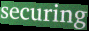
securing